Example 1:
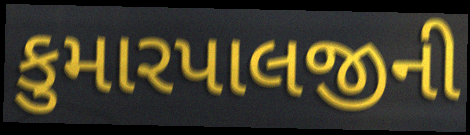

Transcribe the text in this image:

કુમારપાલજીની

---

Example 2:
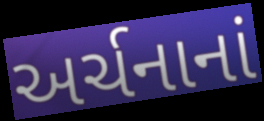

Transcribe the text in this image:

અર્ચનાનાં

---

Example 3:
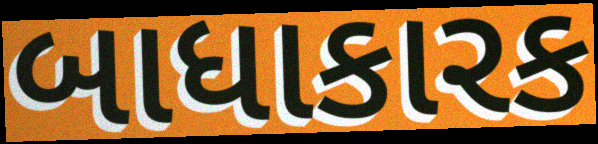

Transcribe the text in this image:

બાધાકારક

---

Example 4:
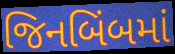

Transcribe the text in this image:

જિનબિંબમાં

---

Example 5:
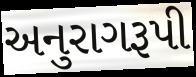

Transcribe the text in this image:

અનુરાગરૂપી